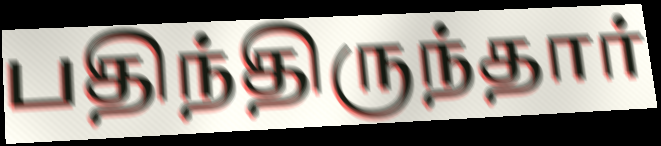
பதிந்திருந்தார்